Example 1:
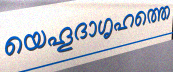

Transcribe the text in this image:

യെഹൂദാഗൃഹത്തെ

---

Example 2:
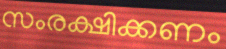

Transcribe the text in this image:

സംരക്ഷിക്കണം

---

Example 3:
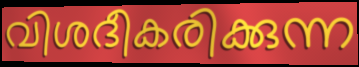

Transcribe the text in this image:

വിശദീകരിക്കുന്ന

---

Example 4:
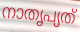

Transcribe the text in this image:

നാതൃപ്യത്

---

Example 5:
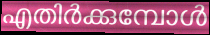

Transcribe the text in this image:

എതിർക്കുമ്പോൾ